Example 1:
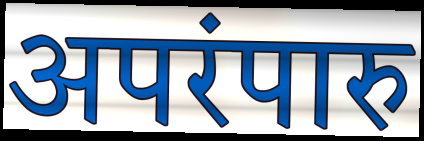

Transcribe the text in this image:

अपरंपारु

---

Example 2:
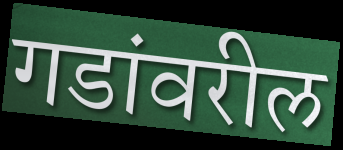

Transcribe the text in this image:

गडांवरील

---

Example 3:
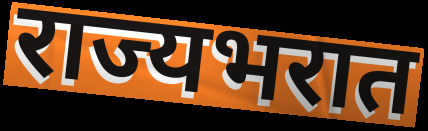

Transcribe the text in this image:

राज्यभरात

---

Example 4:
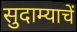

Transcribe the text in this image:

सुदाम्याचें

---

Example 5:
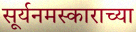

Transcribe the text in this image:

सूर्यनमस्काराच्या